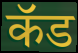
कॅड